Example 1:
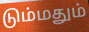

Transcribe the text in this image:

டும்மதும்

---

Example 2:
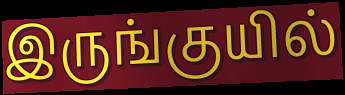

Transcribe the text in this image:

இருங்குயில்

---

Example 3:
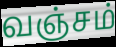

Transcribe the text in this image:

வஞ்சம்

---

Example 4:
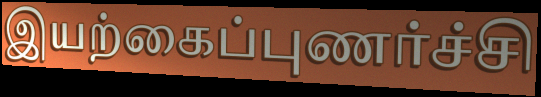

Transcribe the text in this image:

இயற்கைப்புணர்ச்சி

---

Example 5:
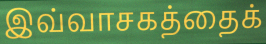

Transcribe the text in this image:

இவ்வாசகத்தைக்